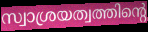
സ്വാശ്രയത്വത്തിന്റെ